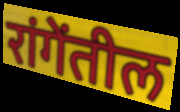
रांगेंतील